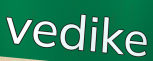
vedike